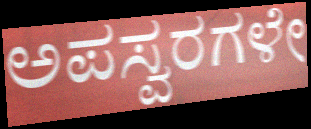
ಅಪಸ್ವರಗಳೇ